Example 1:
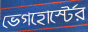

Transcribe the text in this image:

ভেগহোর্স্টের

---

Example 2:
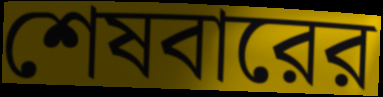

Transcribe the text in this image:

শেষবারের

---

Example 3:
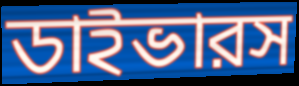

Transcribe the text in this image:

ডাইভারস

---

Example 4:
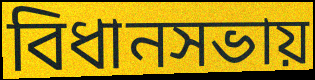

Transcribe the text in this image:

বিধানসভায়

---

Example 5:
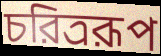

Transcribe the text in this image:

চরিত্ররূপ